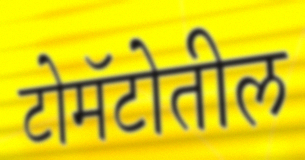
टोमॅटोतील